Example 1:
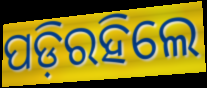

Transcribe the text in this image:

ପଡ଼ିରହିଲେ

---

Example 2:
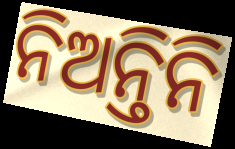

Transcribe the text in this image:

ନିଅନ୍ତିନି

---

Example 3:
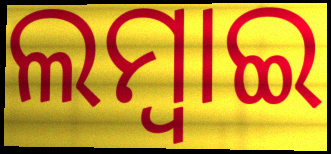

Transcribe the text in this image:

ଲମ୍ବାଇ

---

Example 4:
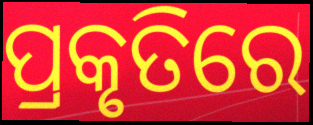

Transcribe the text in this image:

ପ୍ରକୃତିରେ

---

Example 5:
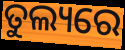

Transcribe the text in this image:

ତୁଲ୍ୟରେ